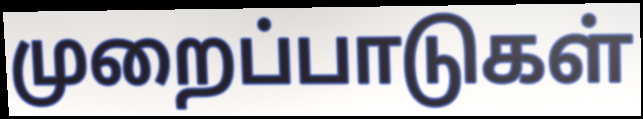
முறைப்பாடுகள்